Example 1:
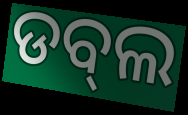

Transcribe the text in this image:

ଡବ୍‌ଲ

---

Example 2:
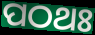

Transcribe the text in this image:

ପଠଥଃ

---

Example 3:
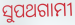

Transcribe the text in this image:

ସୁପଥଗାମୀ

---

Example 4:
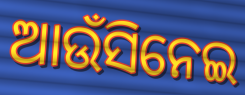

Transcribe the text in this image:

ଆଉଁସିନେଇ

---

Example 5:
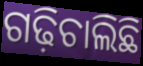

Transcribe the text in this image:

ଗଢ଼ିଚାଲିଛି